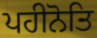
ਪਹੀਨੋਤਿ